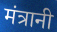
मंत्रानी